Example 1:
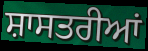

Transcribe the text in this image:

ਸ਼ਾਸਤਰੀਆਂ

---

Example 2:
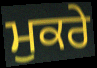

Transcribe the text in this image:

ਮੁਕਰੇ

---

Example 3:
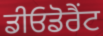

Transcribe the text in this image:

ਡੀਓਡੋਰੈਂਟ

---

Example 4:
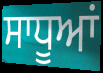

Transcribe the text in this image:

ਸਾਧੂਆਂ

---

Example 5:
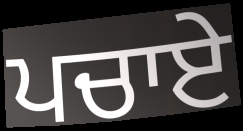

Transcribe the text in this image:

ਪਚਾਏ